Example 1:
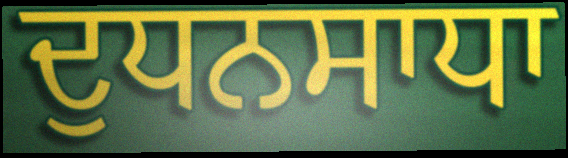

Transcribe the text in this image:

ਦੁਧਨਸਾਧਾ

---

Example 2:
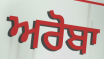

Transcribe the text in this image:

ਅਰੋਬਾ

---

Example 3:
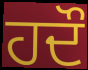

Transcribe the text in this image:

ਹਦੌ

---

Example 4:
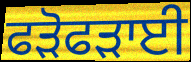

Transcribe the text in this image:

ਫੜੋਫੜਾਈ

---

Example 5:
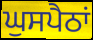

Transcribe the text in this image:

ਘੁਸਪੈਠਾਂ